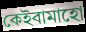
কেইবামাহো